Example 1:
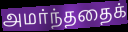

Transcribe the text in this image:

அமர்ந்ததைக்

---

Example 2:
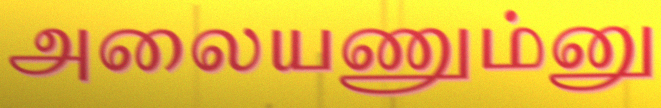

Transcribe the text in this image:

அலையணும்னு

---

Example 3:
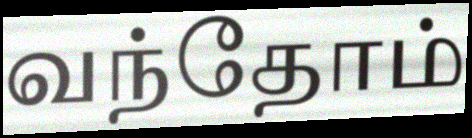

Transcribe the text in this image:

வந்தோம்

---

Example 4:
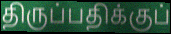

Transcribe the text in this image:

திருப்பதிக்குப்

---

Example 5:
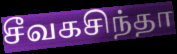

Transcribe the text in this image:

சீவகசிந்தா